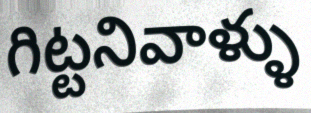
గిట్టనివాళ్ళు